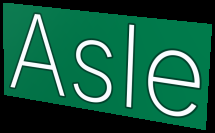
Asle